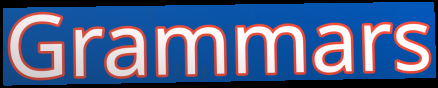
Grammars